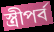
স্ত্রীপর্ব